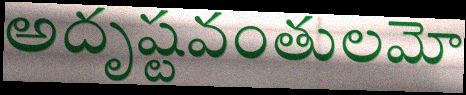
అదృష్టవంతులమో